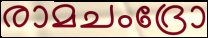
രാമചംദ്രോ